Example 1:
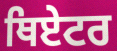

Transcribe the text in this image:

ਥਿਏਟਰ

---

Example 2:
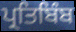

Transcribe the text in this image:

ਪ੍ਰਤਿਬਿੰਬ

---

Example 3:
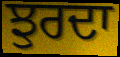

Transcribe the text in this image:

ਝੁਰਦਾ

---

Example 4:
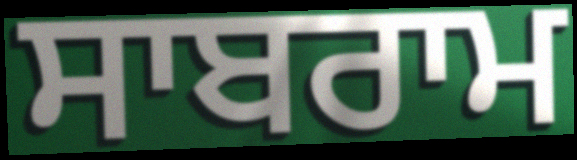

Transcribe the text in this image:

ਸਾਬਰਾਮ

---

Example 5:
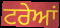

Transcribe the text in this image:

ਟਰੇਆਂ